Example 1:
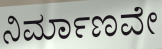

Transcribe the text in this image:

ನಿರ್ಮಾಣವೇ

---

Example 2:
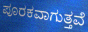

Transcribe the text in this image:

ಪೂರಕವಾಗುತ್ತವೆ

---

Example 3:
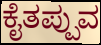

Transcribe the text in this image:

ಕೈತಪ್ಪುವ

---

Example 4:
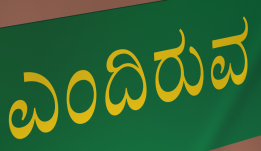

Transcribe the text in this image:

ಎಂದಿರುವ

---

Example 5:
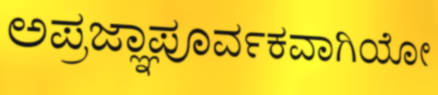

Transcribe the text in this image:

ಅಪ್ರಜ್ಞಾಪೂರ್ವಕವಾಗಿಯೋ